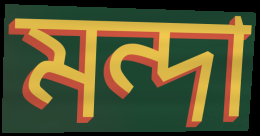
মন্দা